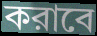
করাবে